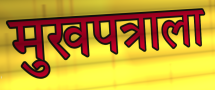
मुखपत्राला